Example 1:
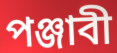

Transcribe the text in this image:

পঞ্জাবী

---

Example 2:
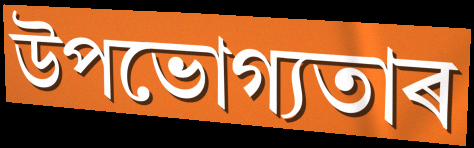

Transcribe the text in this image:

উপভোগ্যতাৰ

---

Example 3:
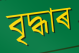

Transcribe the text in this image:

বৃদ্ধাৰ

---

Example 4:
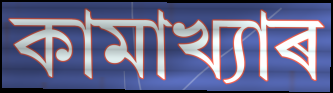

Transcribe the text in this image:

কামাখ্যাৰ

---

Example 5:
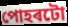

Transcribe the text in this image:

পোহৰটো